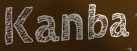
Kanba